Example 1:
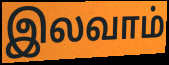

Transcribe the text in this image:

இலவாம்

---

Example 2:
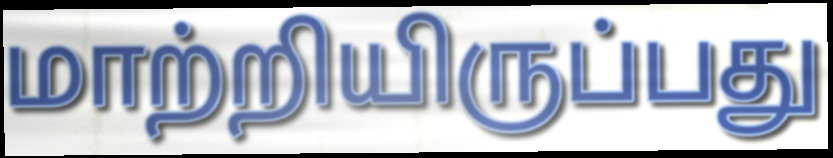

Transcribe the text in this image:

மாற்றியிருப்பது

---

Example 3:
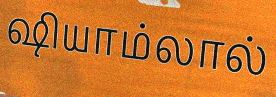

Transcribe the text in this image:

ஷியாம்லால்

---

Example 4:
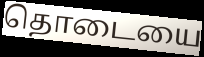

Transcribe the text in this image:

தொடையை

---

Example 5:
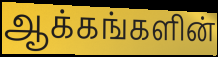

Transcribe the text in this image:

ஆக்கங்களின்